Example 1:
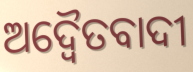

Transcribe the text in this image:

ଅଦ୍ୱୈତବାଦୀ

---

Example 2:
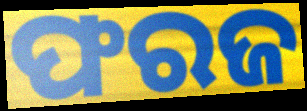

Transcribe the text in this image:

ଫରଜ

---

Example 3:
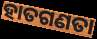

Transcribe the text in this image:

ହାତଗଣତା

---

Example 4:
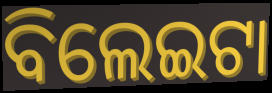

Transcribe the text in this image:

ବିଲେଇଟା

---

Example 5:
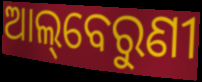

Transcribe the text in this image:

ଆଲ୍‌ବେରୁଣୀ